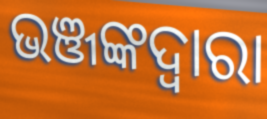
ଭଞ୍ଜଙ୍କଦ୍ୱାରା